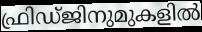
ഫ്രിഡ്ജിനുമുകളിൽ